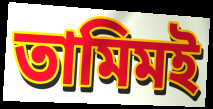
তামিমই